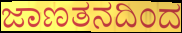
ಜಾಣತನದಿಂದ